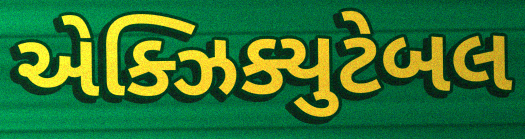
એક્ઝિક્યુટેબલ